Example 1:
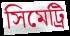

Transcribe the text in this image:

সিমেট্রি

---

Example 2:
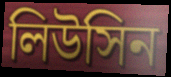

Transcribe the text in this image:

লিউসিন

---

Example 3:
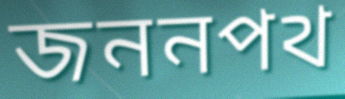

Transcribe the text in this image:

জননপথ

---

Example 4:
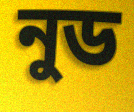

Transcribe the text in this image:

নুড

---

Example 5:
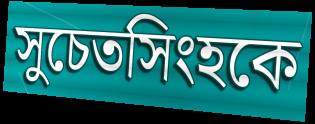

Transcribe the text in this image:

সুচেতসিংহকে